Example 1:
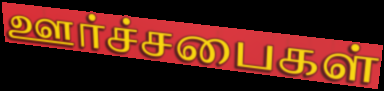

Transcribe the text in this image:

ஊர்ச்சபைகள்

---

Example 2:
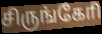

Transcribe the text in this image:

சிருங்கேரி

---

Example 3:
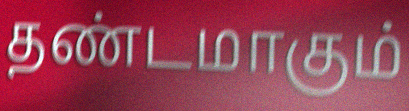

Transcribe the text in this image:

தண்டமாகும்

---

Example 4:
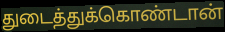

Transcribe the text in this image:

துடைத்துக்கொண்டான்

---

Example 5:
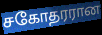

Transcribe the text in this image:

சகோதரரான